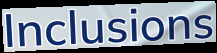
Inclusions